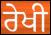
ਰੇਖੀ